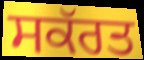
ਸਕੱਰਤ